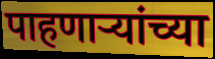
पाहणार्‍यांच्या